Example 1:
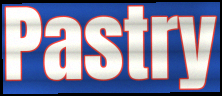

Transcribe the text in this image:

Pastry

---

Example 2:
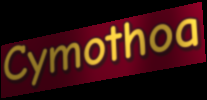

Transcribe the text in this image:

Cymothoa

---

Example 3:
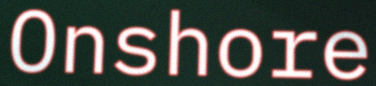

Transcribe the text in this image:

Onshore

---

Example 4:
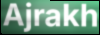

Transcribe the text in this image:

Ajrakh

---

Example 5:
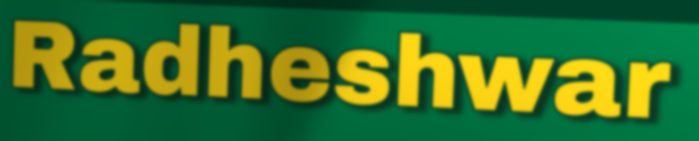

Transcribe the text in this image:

Radheshwar